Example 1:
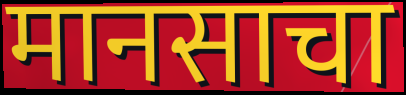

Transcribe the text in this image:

मानसाचा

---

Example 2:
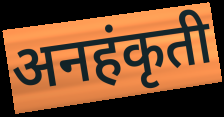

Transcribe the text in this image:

अनहंकृती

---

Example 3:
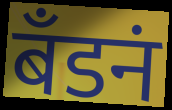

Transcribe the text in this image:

बँडनं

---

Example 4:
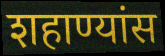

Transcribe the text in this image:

शहाण्यांस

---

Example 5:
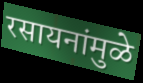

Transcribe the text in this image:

रसायनांमुळे